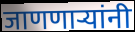
जाणणाऱ्यांनी